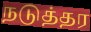
நடுத்தர